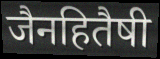
जैनहितैषी